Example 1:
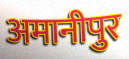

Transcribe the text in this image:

अमानीपुर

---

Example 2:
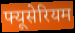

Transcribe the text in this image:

फ्यूसेरियम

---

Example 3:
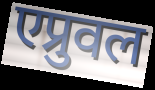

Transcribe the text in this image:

एप्रुवल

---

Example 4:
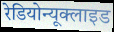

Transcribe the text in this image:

रेडियोन्यूक्लाइड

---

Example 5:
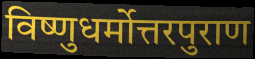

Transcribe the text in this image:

विष्णुधर्मोत्तरपुराण